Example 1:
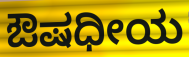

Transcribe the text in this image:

ಔಷಧೀಯ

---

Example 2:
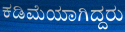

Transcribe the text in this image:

ಕಡಿಮೆಯಾಗಿದ್ದರು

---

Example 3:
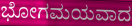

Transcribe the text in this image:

ಭೋಗಮಯವಾದ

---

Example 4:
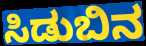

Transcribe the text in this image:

ಸಿಡುಬಿನ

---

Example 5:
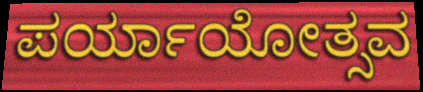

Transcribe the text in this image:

ಪರ್ಯಾಯೋತ್ಸವ